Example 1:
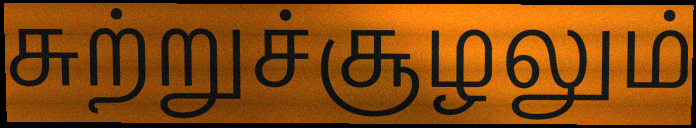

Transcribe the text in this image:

சுற்றுச்சூழலும்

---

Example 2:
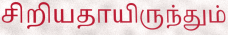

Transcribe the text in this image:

சிறியதாயிருந்தும்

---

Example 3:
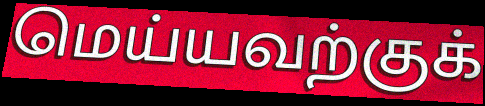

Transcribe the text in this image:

மெய்யவற்குக்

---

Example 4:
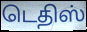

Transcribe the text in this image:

டெதிஸ்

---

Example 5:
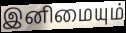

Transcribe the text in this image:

இனிமையும்